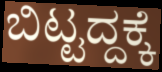
ಬಿಟ್ಟದ್ದಕ್ಕೆ